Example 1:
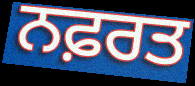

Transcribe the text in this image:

ਨਫ਼ਰਤ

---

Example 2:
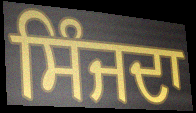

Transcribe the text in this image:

ਸਿੰਜਦਾ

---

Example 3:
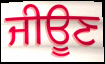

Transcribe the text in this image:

ਜੀਊਣ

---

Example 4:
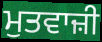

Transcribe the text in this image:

ਮੁਤਵਾਜ਼ੀ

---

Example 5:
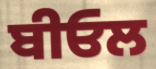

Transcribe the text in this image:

ਬੀਓਲ